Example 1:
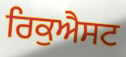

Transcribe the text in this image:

ਰਿਕੁਐਸਟ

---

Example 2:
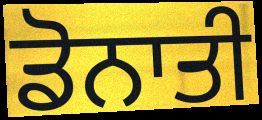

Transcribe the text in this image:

ਡੋਨਾਤੀ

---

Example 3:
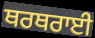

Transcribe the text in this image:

ਥਰਥਰਾਈ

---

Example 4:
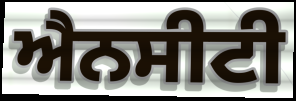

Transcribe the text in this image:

ਐਨਸੀਟੀ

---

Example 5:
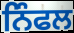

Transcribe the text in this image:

ਨਿੰਫਲ